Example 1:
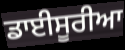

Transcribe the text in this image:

ਡਾਈਸੂਰੀਆ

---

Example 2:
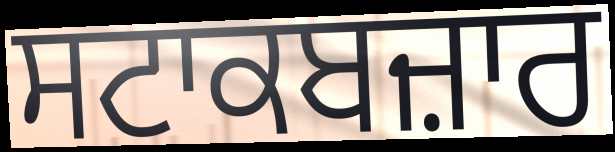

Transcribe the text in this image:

ਸਟਾਕਬਜ਼ਾਰ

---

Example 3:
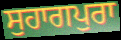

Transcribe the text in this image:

ਸੁਹਾਗਪੁਰਾ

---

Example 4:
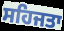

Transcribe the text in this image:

ਸਹਿਜਤਾ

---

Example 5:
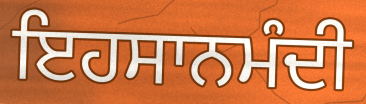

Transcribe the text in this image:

ਇਹਸਾਨਮੰਦੀ